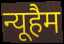
न्यूहैम